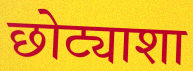
छोट्याशा